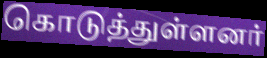
கொடுத்துள்ளனர்